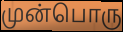
முன்பொரு